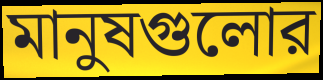
মানুষগুলোর